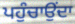
ਪਹੁੰਚਾਉਂਦਾ